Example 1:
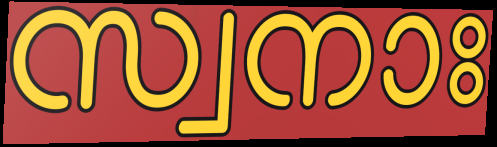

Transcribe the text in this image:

സ്വനാഃ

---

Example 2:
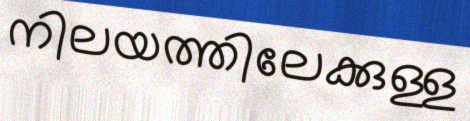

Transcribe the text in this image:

നിലയത്തിലേക്കുള്ള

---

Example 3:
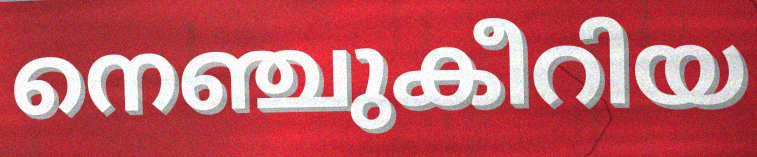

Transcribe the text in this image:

നെഞ്ചുകീറിയ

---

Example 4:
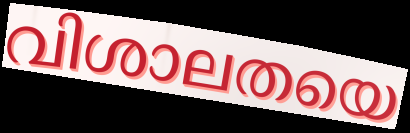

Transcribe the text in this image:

വിശാലതയെ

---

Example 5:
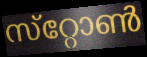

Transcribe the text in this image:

സ്‌റ്റോൺ